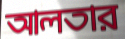
আলতার